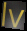
Iv